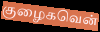
குழைகவென்